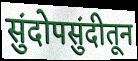
सुंदोपसुंदीतून